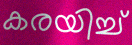
കരയിച്ച്